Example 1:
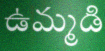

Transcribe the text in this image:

ఉమ్మడి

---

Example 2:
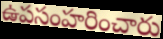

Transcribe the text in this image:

ఉపసంహరించారు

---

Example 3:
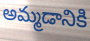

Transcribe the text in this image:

అమ్మడానికి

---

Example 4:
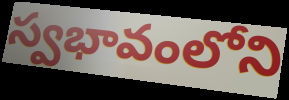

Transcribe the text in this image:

స్వభావంలోని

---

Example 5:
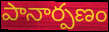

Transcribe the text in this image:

పానార్పణం